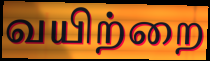
வயிற்றை